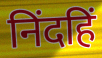
निंदहिं